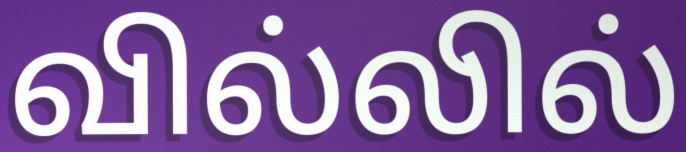
வில்லில்